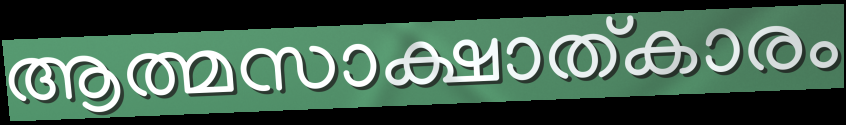
ആത്മസാക്ഷാത്കാരം